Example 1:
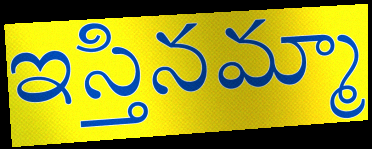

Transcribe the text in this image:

ఇస్తినమ్మా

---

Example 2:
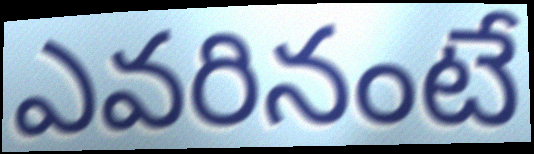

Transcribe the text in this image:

ఎవరినంటే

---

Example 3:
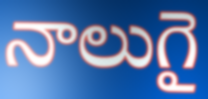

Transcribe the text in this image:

నాలుగై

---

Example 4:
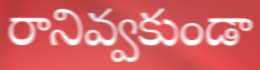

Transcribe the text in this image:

రానివ్వకుండా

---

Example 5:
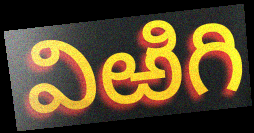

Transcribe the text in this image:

విఱిగి